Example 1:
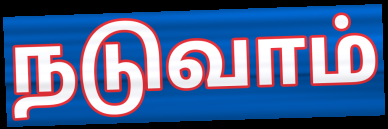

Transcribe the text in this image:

நடுவாம்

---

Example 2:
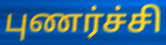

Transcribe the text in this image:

புணர்ச்சி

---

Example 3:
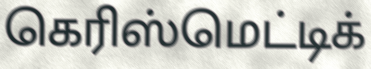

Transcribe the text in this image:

கெரிஸ்மெட்டிக்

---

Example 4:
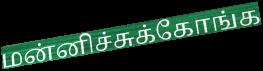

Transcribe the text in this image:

மன்னிச்சுக்கோங்க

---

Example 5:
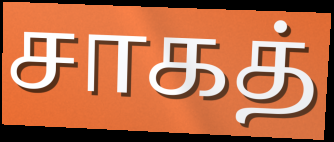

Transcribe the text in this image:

சாகத்